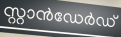
സ്റ്റാൻഡേർഡ്